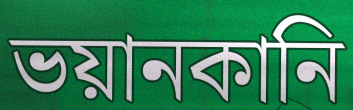
ভয়ানকানি